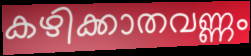
കഴിക്കാതവണ്ണം